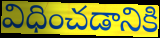
విధించడానికి